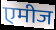
एमीज